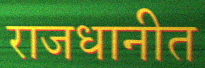
राजधानीत